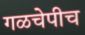
गळचेपीच